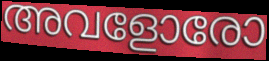
അവളോരോ